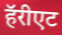
हॅरीएट